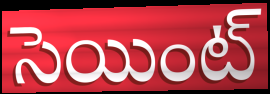
సెయింట్